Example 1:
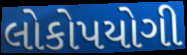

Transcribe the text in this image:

લોકોપયોગી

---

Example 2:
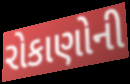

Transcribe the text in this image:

રોકાણોની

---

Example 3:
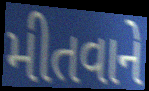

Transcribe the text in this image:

મીતવાને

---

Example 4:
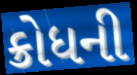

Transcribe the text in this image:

ક્રોધની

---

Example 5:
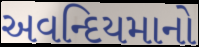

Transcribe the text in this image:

અવન્દિયમાનો